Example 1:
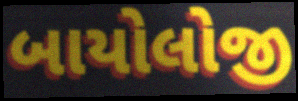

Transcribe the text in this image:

બાયોલોજી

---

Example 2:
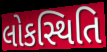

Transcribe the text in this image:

લોકસ્થિતિ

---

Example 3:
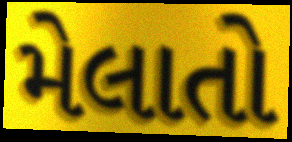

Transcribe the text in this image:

મેલાતો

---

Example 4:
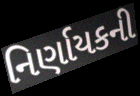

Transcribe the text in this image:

નિર્ણાયકની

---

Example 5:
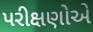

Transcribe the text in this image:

પરીક્ષણોએ